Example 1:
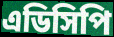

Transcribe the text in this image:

এডিসিপি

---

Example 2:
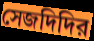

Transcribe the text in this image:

সেজদিদির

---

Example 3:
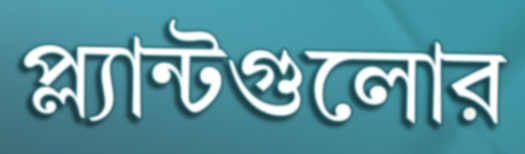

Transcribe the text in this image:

প্ল্যান্টগুলোর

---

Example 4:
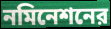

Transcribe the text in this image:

নমিনেশনের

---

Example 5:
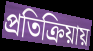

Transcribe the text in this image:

প্রতিক্রিয়ায়